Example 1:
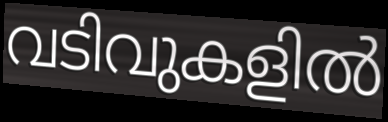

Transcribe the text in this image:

വടിവുകളിൽ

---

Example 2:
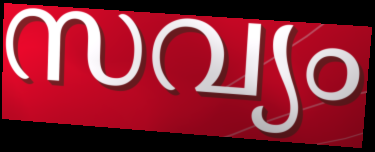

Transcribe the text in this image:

സവ്യം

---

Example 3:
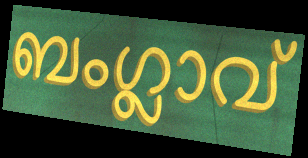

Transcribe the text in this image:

ബംഗ്ലാവ്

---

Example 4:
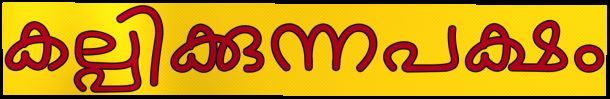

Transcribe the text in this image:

കല്പിക്കുന്നപക്ഷം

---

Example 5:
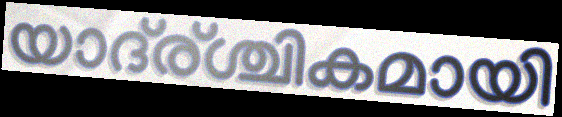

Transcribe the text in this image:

യാദ്ര്ശ്ചികമായി